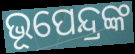
ଭୂପେନ୍ଦ୍ରଙ୍କ